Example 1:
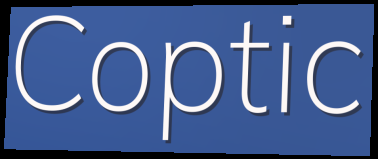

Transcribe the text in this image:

Coptic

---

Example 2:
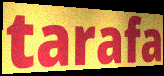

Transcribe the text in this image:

tarafa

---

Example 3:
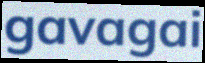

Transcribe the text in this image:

gavagai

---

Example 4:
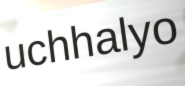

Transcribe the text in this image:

uchhalyo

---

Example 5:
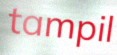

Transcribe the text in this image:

tampil